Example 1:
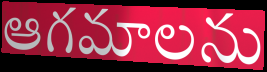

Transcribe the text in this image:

ఆగమాలను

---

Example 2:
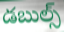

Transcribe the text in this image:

డబుల్స్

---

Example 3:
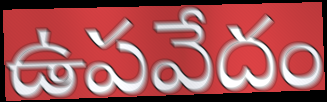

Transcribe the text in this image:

ఉపవేదం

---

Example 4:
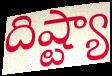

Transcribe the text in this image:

దిష్ట్యా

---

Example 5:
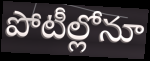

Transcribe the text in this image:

పోటీల్లోనూ